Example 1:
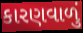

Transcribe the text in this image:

કારણવાળું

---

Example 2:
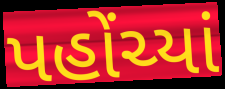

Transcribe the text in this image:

પહોંચ્યાં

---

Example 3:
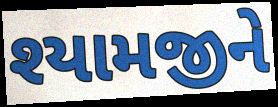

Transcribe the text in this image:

શ્યામજીને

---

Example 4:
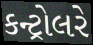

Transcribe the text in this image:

કન્ટ્રોલરે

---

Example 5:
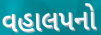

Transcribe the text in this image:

વહાલપનો